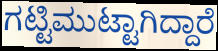
ಗಟ್ಟಿಮುಟ್ಟಾಗಿದ್ದಾರೆ